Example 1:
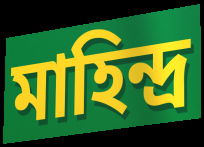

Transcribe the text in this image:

মাহিন্দ্র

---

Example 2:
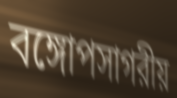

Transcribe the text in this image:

বঙ্গোপসাগরীয়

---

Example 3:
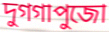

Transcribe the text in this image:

দুগগাপুজো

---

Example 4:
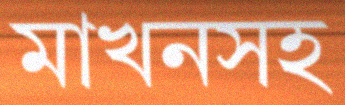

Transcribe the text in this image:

মাখনসহ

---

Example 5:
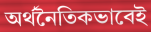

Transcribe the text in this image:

অর্থনৈতিকভাবেই